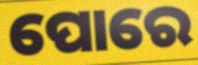
ପୋରେ